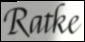
Ratke